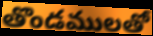
తొండములతో